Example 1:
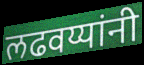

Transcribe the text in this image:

लढवय्यांनी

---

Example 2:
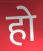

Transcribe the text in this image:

हो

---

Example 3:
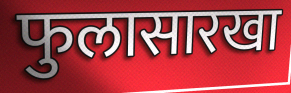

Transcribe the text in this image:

फुलासारखा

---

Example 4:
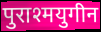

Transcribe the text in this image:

पुराश्मयुगीन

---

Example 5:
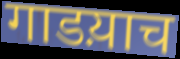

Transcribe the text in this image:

गाडय़ाच